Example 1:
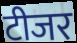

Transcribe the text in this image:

टीजर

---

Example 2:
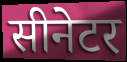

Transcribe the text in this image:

सीनेटर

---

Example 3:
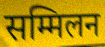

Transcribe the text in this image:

सम्मिलन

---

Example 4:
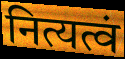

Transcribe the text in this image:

नित्यत्वं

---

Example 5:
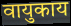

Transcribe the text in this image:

वायुकाय